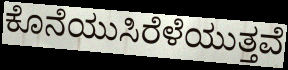
ಕೊನೆಯುಸಿರೆಳೆಯುತ್ತವೆ